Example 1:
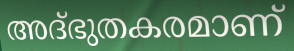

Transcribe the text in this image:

അദ്ഭുതകരമാണ്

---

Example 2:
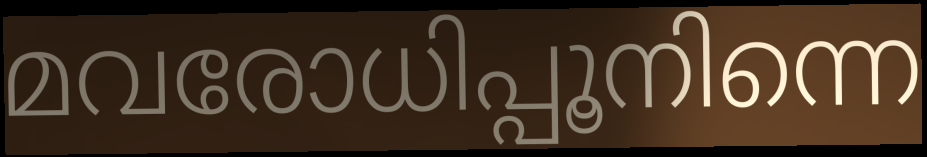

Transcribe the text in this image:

മവരോധിപ്പൂനിന്നെ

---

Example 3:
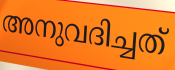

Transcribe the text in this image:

അനുവദിച്ചത്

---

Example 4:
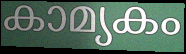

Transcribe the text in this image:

കാമ്യകം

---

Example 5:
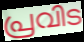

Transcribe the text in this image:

പ്രവിട